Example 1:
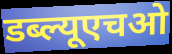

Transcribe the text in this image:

डब्ल्यूएचओ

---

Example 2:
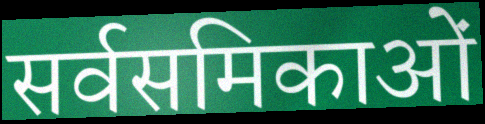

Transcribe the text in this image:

सर्वसमिकाओं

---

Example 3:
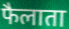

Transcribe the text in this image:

फैलाता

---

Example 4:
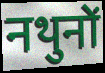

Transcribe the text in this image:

नथुनों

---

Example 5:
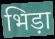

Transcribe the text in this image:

भिड़ा